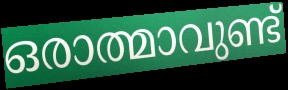
ഒരാത്മാവുണ്ട്